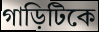
গাড়িটিকে